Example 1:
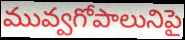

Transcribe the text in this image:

మువ్వగోపాలునిపై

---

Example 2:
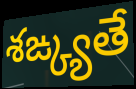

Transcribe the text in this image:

శఙ్క్యతే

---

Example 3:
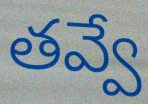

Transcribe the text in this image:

తవ్వే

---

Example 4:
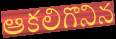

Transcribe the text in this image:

ఆకలిగొనిన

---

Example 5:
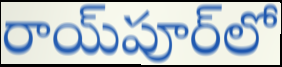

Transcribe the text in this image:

రాయ్‌పూర్‌లో